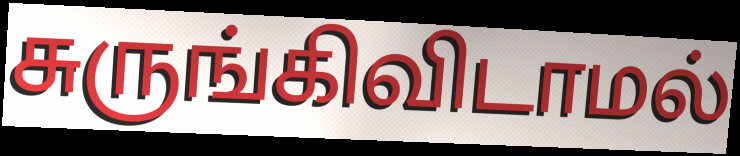
சுருங்கிவிடாமல்